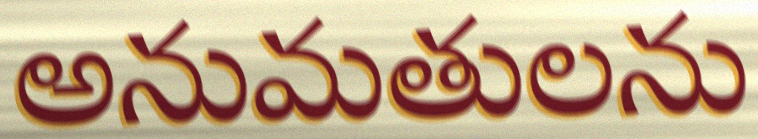
అనుమతులను